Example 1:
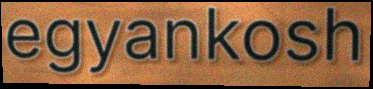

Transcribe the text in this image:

egyankosh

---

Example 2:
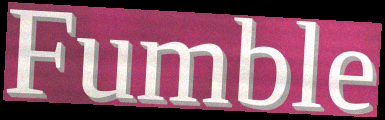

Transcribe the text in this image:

Fumble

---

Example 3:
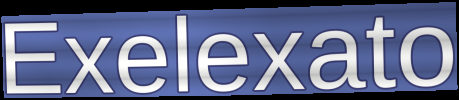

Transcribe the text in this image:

Exelexato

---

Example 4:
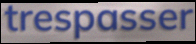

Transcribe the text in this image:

trespasser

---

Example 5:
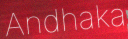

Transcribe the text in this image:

Andhaka